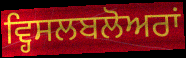
ਵ੍ਹਿਸਲਬਲੋਅਰਾਂ